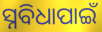
ସ୍ନବିଧାପାଇଁ